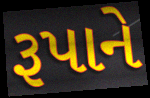
રૂપાને